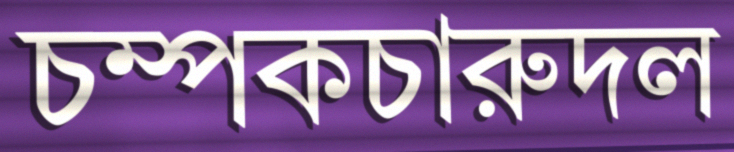
চম্পকচারুদল